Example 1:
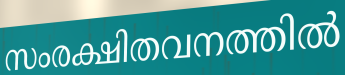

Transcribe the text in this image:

സംരക്ഷിതവനത്തിൽ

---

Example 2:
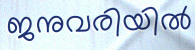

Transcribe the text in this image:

ജനുവരിയിൽ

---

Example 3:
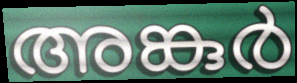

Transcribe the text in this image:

അങ്കുർ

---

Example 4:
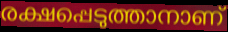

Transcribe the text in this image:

രക്ഷപ്പെടുത്താനാണ്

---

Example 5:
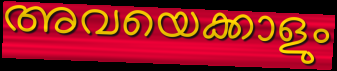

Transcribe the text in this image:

അവയെക്കാളും